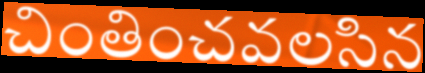
చింతించవలసిన